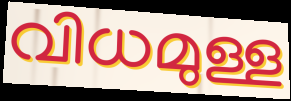
വിധമുള്ള